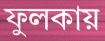
ফুলকায়